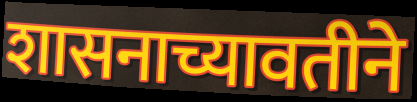
शासनाच्यावतीने